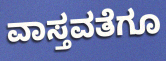
ವಾಸ್ತವತೆಗೂ